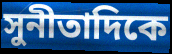
সুনীতাদিকে